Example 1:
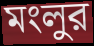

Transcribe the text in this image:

মংলুর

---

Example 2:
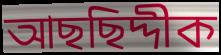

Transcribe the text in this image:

আছছিদ্দীক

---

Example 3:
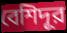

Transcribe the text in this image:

বেশিদূর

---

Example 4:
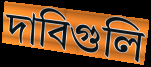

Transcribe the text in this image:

দাবিগুলি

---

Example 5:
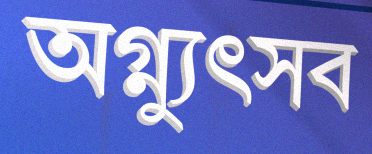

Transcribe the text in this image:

অগ্ন্যুৎসব